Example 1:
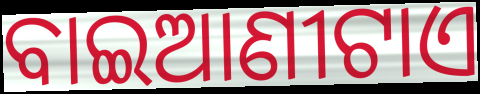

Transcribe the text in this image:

ବାଇଆଣୀଟାଏ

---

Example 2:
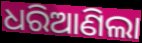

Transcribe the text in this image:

ଧରିଆଣିଲା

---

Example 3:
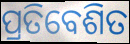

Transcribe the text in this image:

ପ୍ରତିବେଶିତ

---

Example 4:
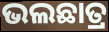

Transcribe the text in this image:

ଭଲଛାତ୍ର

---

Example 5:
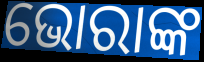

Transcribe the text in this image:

ଭୋରାଙ୍କ